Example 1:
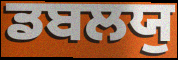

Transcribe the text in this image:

ਡਬਲਯੁ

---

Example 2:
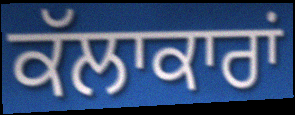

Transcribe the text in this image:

ਕੱਲਾਕਾਰਾਂ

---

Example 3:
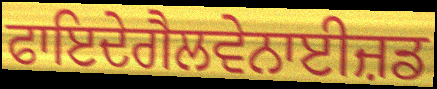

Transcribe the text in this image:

ਫਾਇਦੇਗੈਲਵੇਨਾਈਜ਼ਡ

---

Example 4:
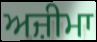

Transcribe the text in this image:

ਅਜ਼ੀਮਾ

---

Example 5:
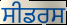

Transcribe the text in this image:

ਸੀਡਰਸ